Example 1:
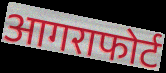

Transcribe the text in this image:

आगराफोर्ट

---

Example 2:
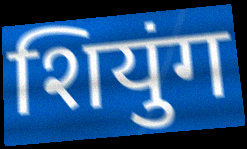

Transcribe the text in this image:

शियुंग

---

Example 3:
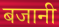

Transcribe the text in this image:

बजानी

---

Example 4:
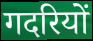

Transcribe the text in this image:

गदरियों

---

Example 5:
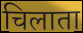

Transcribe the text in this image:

चिलाता